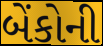
બેંકોની